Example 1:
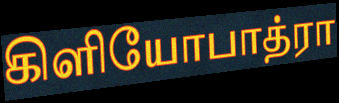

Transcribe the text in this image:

கிளியோபாத்ரா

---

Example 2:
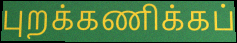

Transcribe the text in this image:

புறக்கணிக்கப்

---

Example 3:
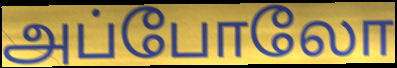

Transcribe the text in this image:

அப்போலோ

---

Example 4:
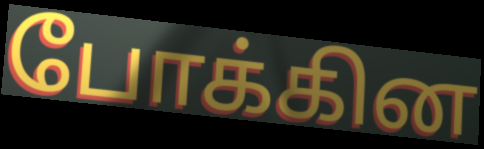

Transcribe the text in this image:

போக்கின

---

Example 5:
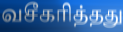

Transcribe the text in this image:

வசீகரித்தது